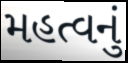
મહત્વનું